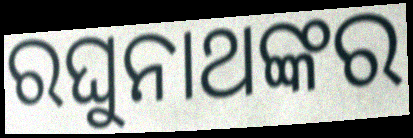
ରଘୁନାଥଙ୍କର